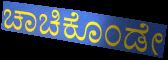
ಚಾಚಿಕೊಂಡೇ